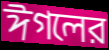
ঈগলের